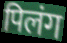
पिलंग